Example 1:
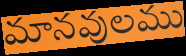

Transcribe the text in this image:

మానవులము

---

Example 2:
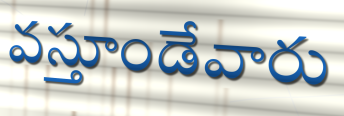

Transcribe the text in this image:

వస్తూండేవారు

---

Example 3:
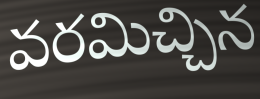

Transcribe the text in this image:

వరమిచ్చిన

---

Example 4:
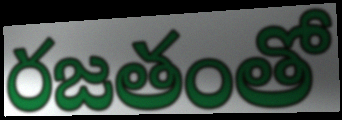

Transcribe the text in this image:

రజతంతో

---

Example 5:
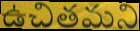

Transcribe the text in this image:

ఉచితమని